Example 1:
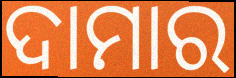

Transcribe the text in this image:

ଦାମାର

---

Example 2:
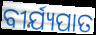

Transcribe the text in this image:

ବୀର୍ଯ୍ୟପାତ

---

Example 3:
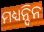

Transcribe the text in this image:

ମଧ୍ୟନ୍ଦିନ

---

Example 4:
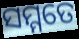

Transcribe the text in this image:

ସମ୍ମତେ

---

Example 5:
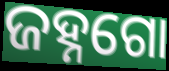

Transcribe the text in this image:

ଜହ୍ନଗୋ